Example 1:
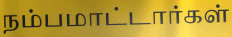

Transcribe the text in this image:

நம்பமாட்டார்கள்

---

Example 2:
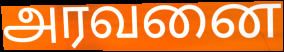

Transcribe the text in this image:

அரவனை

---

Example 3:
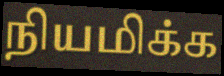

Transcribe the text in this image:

நியமிக்க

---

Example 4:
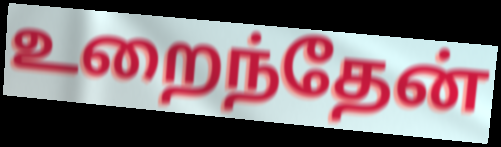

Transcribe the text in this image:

உறைந்தேன்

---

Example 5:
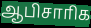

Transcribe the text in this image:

ஆபிசாரிக